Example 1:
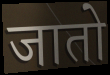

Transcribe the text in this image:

जातो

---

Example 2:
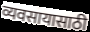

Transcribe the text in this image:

व्यवसायासाठी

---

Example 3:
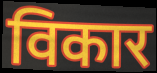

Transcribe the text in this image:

विकार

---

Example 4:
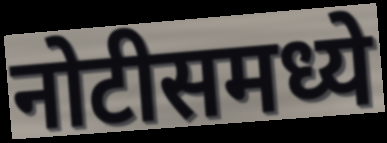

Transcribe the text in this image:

नोटीसमध्ये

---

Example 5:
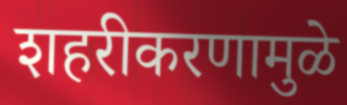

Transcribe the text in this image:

शहरीकरणामुळे